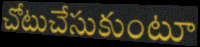
చోటుచేసుకుంటూ